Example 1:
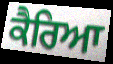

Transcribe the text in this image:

ਕੈਰਿਆ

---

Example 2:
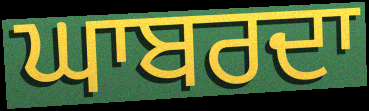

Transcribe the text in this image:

ਘਾਬਰਦਾ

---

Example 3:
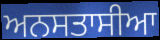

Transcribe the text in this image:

ਅਨਸਤਾਸੀਆ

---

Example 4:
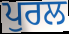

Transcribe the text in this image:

ਪੁਰਲ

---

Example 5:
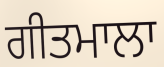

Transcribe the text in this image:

ਗੀਤਮਾਲਾ